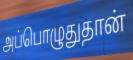
அப்பொழுதுதான்